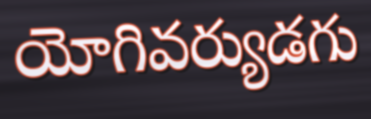
యోగివర్యుడగు